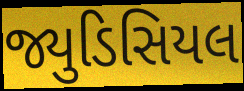
જ્યુડિસિયલ